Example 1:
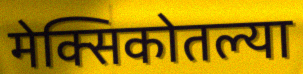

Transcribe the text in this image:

मेक्सिकोतल्या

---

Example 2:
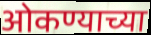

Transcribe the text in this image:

ओकण्याच्या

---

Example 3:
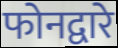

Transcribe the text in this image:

फोनद्वारे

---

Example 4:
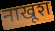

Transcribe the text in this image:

नाखूश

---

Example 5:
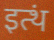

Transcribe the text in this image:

इत्थं